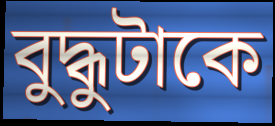
বুদ্ধুটাকে